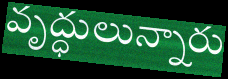
వృద్ధులున్నారు